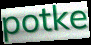
potke